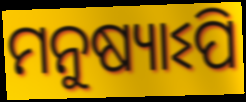
ମନୁଷ୍ୟାଽପି